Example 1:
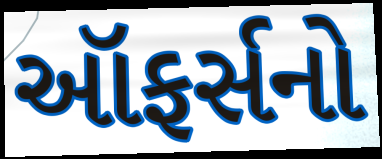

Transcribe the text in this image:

ઑફર્સનો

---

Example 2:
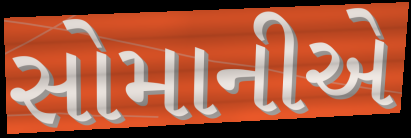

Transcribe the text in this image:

સોમાનીએ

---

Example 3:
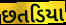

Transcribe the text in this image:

છતડિયા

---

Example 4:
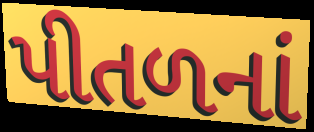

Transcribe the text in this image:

પીતળનાં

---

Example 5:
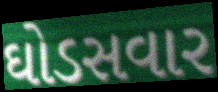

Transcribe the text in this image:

ઘોડસવાર